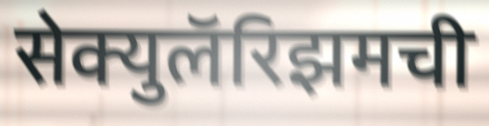
सेक्युलॅरिझमची